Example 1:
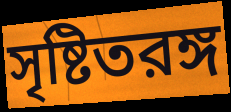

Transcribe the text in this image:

সৃষ্টিতরঙ্গ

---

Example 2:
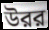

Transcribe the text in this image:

উরর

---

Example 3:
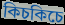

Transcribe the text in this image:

কিচকিচে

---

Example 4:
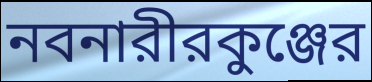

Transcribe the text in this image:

নবনারীরকুঞ্জের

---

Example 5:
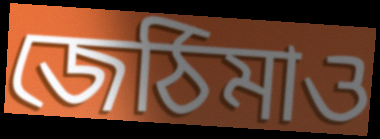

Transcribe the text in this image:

জেঠিমাও